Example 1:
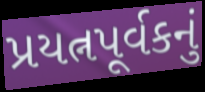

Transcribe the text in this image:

પ્રયત્નપૂર્વકનું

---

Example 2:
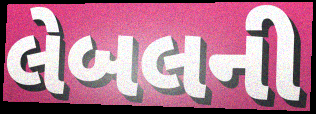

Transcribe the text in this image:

લેબલની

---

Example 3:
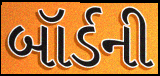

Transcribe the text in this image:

બૉર્ડની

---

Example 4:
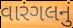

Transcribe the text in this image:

વારંગલનું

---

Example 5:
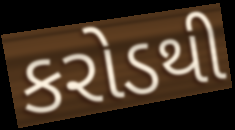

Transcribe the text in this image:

કરોડથી